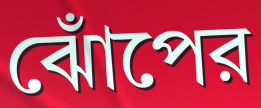
ঝোঁপের